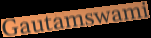
Gautamswami